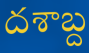
దశాబ్ద